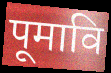
पूमावि